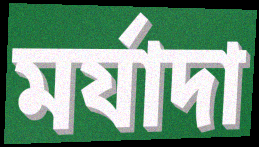
মর্যাদা